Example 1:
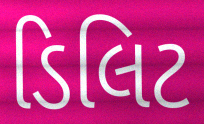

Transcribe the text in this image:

ડિલિટ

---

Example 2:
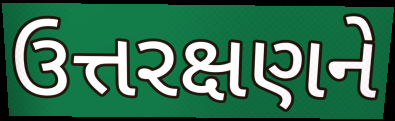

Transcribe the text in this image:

ઉત્તરક્ષણને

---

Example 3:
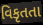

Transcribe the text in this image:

વિકૃતતા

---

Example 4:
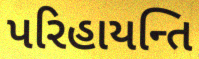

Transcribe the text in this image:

પરિહાયન્તિ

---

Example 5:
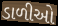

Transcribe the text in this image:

ડાળીઓ